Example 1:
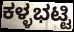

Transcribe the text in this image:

ಕಳ್ಳಭಟ್ಟಿ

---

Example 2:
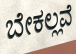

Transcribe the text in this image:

ಬೇಕಲ್ಲವೆ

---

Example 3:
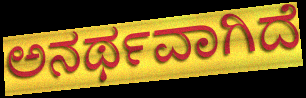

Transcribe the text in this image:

ಅನರ್ಥವಾಗಿದೆ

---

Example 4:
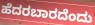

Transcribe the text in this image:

ಹೆದರಬಾರದೆಂದು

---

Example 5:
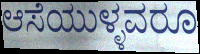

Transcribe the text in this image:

ಆಸೆಯುಳ್ಳವರೂ